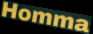
Homma